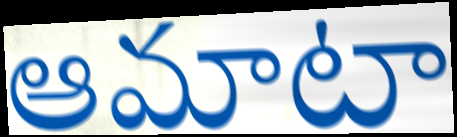
ఆమాటా